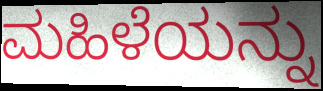
ಮಹಿಳೆಯನ್ನು